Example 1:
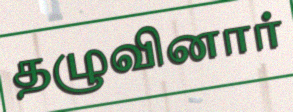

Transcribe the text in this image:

தழுவினார்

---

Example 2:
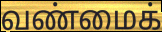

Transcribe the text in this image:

வண்மைக்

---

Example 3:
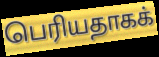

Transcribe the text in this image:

பெரியதாகக்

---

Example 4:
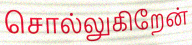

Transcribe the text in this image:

சொல்லுகிறேன்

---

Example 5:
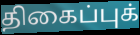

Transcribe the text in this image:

திகைப்புக்